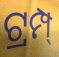
ଟ୍ରମ୍ପ୍